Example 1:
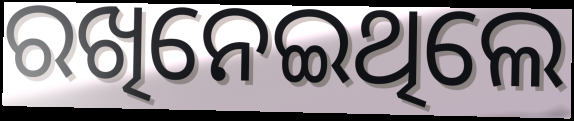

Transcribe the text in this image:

ରଖିନେଇଥିଲେ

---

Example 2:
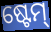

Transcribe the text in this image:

ଷ୍ଟେମ୍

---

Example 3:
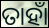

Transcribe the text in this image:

ତାହାଁ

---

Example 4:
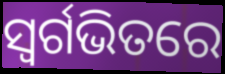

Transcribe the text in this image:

ସ୍ଵର୍ଗଭିତରେ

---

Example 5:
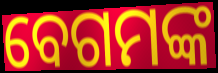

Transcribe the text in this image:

ବେଗମଙ୍କ